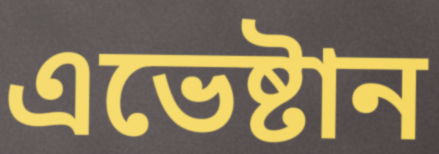
এভেষ্টান